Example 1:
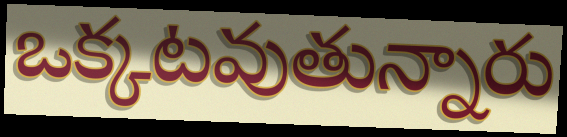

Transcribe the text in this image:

ఒక్కటవుతున్నారు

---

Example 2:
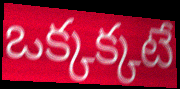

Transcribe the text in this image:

ఒక్కక్కటే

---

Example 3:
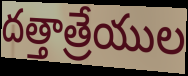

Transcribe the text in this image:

దత్తాత్రేయుల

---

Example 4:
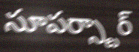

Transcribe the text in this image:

సూపర్స్టార్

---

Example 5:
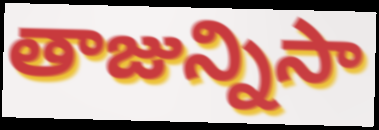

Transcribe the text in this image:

తాజున్నిసా